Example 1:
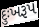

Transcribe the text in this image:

દુઃખરૂપ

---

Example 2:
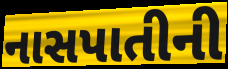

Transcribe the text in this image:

નાસપાતીની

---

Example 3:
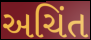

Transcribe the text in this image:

અચિંત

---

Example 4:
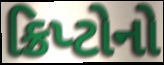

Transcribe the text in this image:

ક્રિપ્ટોનો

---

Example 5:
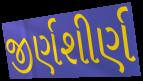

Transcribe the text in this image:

જીર્ણશીર્ણ